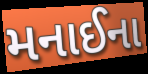
મનાઈના